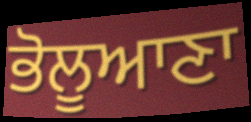
ਭੋਲੂਆਣਾ